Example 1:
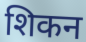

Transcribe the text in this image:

शिकन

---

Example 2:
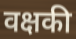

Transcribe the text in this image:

वक्षकी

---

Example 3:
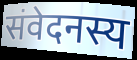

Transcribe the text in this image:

संवेदनस्य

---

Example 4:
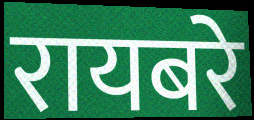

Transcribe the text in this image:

रायबरे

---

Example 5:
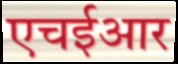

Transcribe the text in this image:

एचईआर